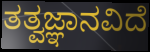
ತತ್ವಜ್ಞಾನವಿದೆ